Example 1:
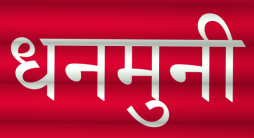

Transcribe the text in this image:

धनमुनी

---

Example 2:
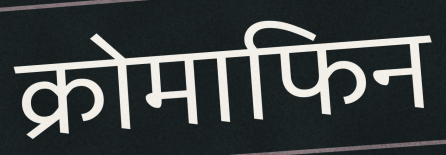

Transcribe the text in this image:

क्रोमाफिन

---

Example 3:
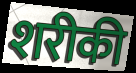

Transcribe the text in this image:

शरीकी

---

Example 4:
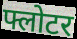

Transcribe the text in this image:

फ्लोटर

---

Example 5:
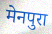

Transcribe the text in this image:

मेनपुरा